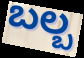
ಬಲ್ಬ